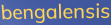
bengalensis